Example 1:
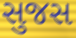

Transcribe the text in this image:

સુજસ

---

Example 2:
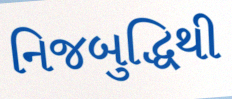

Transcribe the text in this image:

નિજબુદ્ધિથી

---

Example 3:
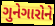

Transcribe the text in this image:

ગુનેગારોને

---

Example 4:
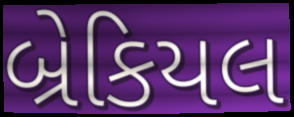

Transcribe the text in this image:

બ્રેકિયલ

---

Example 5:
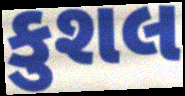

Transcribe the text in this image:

કુશલ